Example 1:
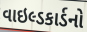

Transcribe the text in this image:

વાઇલ્ડકાર્ડનો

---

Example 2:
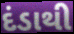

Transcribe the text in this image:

દંડાથી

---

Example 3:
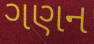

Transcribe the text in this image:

ગણન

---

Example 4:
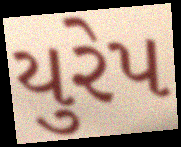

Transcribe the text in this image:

યુરેપ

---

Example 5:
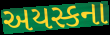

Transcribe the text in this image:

અયસ્કના